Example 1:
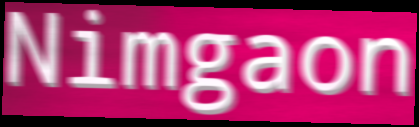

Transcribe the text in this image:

Nimgaon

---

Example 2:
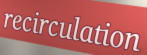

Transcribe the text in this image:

recirculation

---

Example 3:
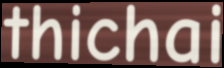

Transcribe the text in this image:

thichai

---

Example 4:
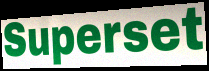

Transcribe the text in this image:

Superset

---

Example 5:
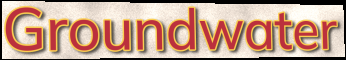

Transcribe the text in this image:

Groundwater